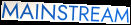
MAINSTREAM